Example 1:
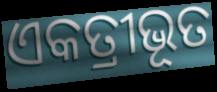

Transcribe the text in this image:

ଏକତ୍ରୀଭୂତ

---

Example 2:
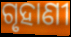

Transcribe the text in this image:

ଗୃହାଣୀ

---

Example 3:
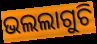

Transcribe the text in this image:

ଭଲଲାଗୁଚି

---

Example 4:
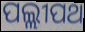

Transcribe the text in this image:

ପଲ୍ଲୀପଥ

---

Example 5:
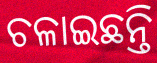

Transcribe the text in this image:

ଚଳାଇଛନ୍ତି